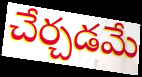
చేర్చడమే